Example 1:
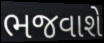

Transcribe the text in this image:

ભજવાશે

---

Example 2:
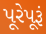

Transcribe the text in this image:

પૂરેપૂરૂં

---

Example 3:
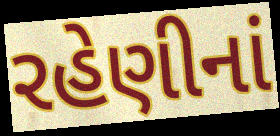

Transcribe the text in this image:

રહેણીનાં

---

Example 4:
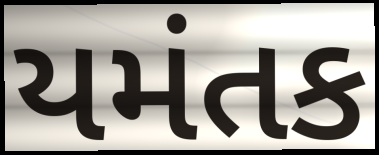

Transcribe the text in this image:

યમંતક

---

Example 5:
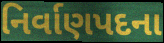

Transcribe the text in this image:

નિર્વાણપદના